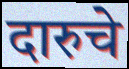
दारुचे